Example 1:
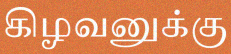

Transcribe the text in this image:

கிழவனுக்கு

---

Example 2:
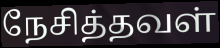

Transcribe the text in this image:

நேசித்தவள்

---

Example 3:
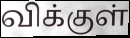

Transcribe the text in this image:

விக்குள்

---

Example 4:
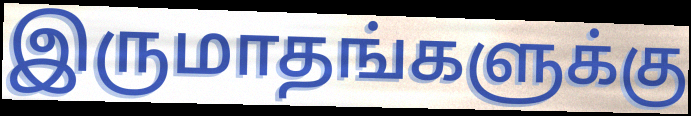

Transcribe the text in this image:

இருமாதங்களுக்கு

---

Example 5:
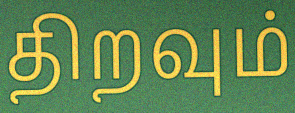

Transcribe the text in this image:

திறவும்